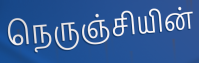
நெருஞ்சியின்